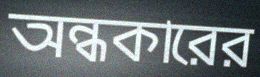
অন্ধকারের